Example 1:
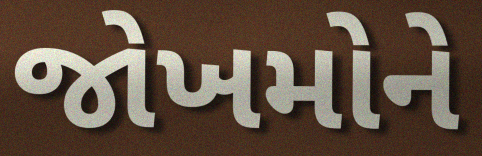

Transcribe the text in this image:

જોખમોને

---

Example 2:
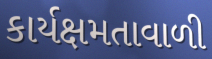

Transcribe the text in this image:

કાર્યક્ષમતાવાળી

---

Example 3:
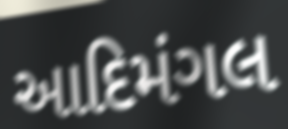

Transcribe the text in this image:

આદિમંગલ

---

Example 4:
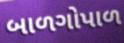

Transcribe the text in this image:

બાળગોપાળ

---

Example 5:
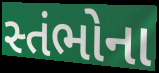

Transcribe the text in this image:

સ્તંભોના